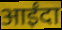
आईंदा